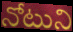
నోటుని